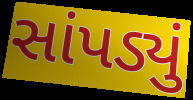
સાંપડ્યું